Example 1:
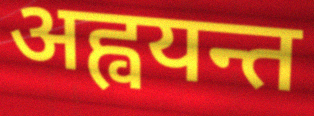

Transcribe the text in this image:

अह्वयन्त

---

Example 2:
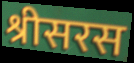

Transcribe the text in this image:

श्रीसरस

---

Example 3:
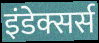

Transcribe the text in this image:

इंडेक्सर्स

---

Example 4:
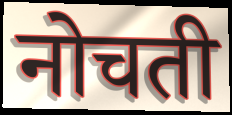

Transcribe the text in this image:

नोचती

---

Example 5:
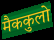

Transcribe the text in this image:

मैककुलो